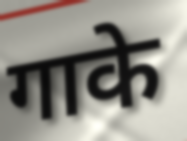
गाके